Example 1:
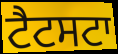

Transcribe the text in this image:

ਟੈਟਸਟਾ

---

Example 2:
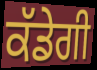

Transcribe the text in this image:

ਕੱਡੇਗੀ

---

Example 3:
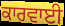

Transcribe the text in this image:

ਕਾਰਵਾਈ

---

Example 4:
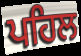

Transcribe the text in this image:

ਪਹਿਲ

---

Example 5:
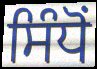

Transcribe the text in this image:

ਸਿੰਧੋਂ